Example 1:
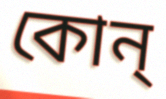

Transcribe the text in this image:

কোন্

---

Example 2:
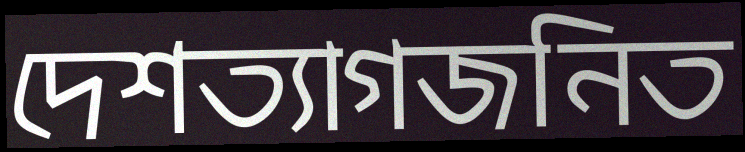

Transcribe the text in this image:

দেশত্যাগজনিত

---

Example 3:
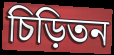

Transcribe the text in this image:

চিড়িতন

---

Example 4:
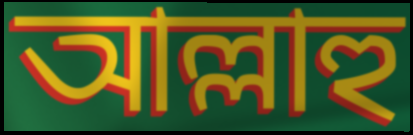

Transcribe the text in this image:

আল্লাহু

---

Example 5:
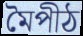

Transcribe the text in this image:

মৈপীঠ